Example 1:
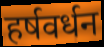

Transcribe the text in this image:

हर्षवर्धन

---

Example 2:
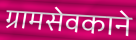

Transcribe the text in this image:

ग्रामसेवकाने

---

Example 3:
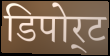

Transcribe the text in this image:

डिपोर्ट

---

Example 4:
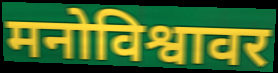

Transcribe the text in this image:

मनोविश्वावर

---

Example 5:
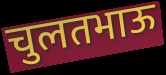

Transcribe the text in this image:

चुलतभाऊ